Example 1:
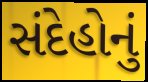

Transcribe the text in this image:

સંદેહોનું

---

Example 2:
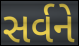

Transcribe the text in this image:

સર્વને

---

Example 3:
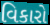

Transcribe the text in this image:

વિકારો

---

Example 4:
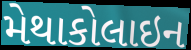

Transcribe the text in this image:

મેથાકોલાઇન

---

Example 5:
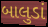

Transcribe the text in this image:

બાલુડાં